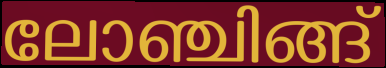
ലോഞ്ചിങ്ങ്